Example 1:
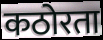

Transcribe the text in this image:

कठोरता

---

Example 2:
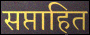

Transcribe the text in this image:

सप्ताहित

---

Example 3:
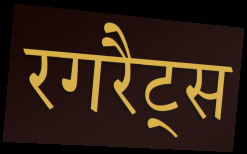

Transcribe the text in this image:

रगरैट्स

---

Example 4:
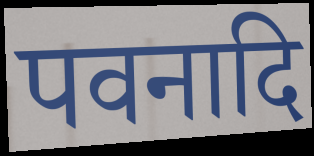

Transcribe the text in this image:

पवनादि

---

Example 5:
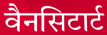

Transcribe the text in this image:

वैनसिटार्ट